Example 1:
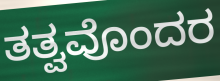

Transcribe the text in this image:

ತತ್ವವೊಂದರ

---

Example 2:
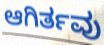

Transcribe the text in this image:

ಆಗಿರ್ತವು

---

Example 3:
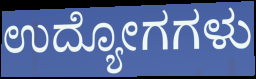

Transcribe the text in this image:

ಉದ್ಯೋಗಗಳು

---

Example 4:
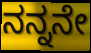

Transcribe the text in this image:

ನನ್ನನೇ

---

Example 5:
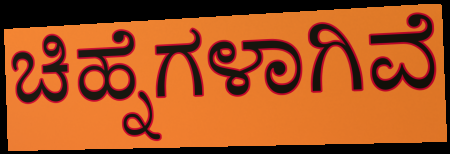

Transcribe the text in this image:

ಚಿಹ್ನೆಗಳಾಗಿವೆ